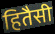
हितैसी